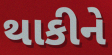
થાકીને